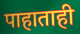
पाहाताही